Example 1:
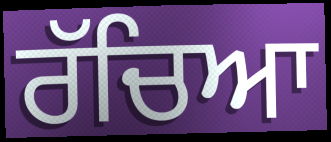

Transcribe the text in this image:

ਰੱਚਿਆ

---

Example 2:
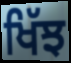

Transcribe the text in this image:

ਖਿੱਝ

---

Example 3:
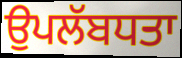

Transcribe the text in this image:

ਉਪਲੱਬਧਤਾ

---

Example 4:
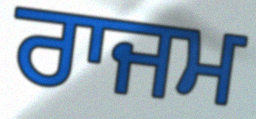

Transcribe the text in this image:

ਰਾਜਮ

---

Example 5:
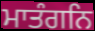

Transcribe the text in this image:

ਮਾਤੰਗਨਿ